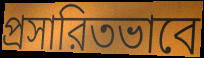
প্রসারিতভাবে